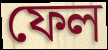
ফেল